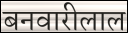
बनवारीलाल